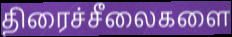
திரைச்சீலைகளை